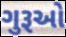
ગુરૂઓ